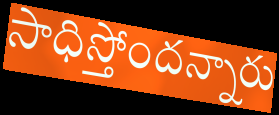
సాధిస్తోందన్నారు